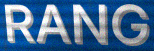
RANG